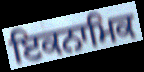
ਇਕਨਾਮਿਕ